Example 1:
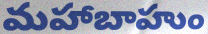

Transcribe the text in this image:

మహాబాహుం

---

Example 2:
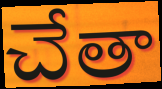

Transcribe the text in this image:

చేతా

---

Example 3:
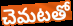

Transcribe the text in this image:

చెమటతో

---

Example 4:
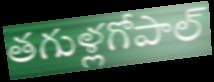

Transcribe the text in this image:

తగుళ్లగోపాల్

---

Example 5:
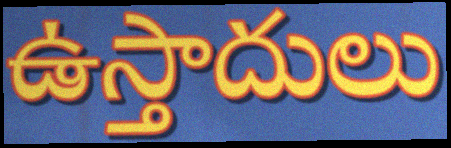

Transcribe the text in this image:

ఉస్తాదులు